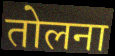
तोलना